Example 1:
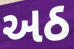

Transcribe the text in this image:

અઠ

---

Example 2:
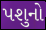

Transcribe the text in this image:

પશુનો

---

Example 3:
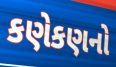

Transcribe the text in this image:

કણેકણનો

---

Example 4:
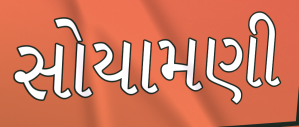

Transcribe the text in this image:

સોયામણી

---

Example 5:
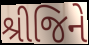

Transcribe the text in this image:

શ્રીજિને